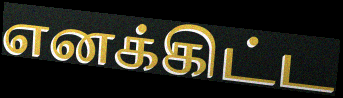
எனக்கிட்ட